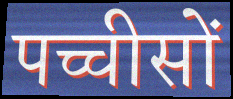
पच्चीसों